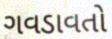
ગવડાવતો